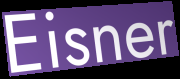
Eisner